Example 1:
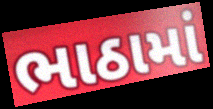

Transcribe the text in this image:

ભાઠામાં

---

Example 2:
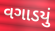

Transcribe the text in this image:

વગાડયું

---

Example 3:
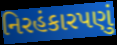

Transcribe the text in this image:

નિરહંકારપણું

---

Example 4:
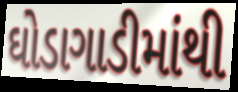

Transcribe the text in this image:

ઘોડાગાડીમાંથી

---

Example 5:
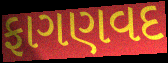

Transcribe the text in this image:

ફાગણવદ